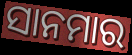
ସାନମାର